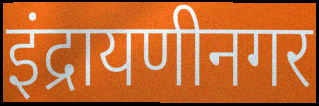
इंद्रायणीनगर